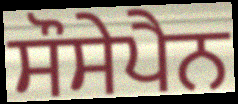
ਸੌਸੇਪੈਨ